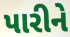
પારીને